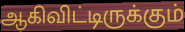
ஆகிவிட்டிருக்கும்